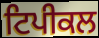
ਟਿਪੀਕਲ